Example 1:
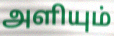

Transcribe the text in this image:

அளியும்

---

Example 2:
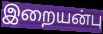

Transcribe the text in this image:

இறையன்பு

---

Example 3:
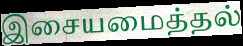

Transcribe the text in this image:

இசையமைத்தல்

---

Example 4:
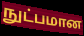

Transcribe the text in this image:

நுட்பமான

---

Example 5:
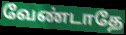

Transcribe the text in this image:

வேண்டாதே